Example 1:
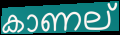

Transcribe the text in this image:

കാണല്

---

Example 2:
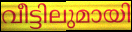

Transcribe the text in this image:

വീട്ടിലുമായി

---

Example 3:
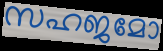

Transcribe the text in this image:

സഹജമോ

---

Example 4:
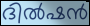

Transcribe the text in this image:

ദിൽഷൻ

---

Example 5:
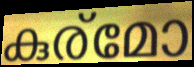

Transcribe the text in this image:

കുര്മോ